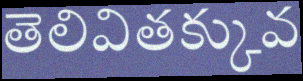
తెలివితక్కువ